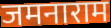
जमनाराम